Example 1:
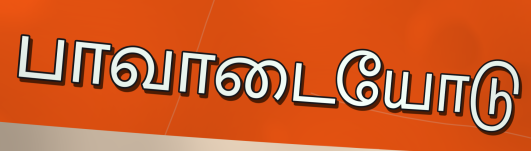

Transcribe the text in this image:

பாவாடையோடு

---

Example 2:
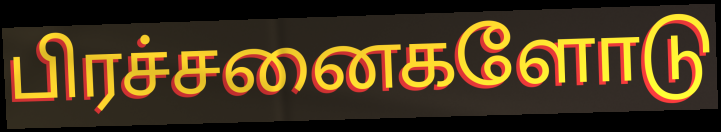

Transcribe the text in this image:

பிரச்சனைகளோடு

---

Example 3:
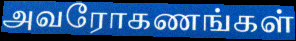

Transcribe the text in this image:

அவரோகணங்கள்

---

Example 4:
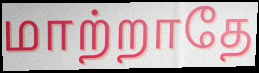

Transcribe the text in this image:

மாற்றாதே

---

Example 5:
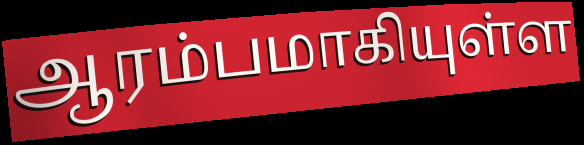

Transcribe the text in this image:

ஆரம்பமாகியுள்ள